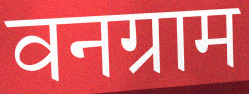
वनग्राम